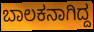
ಬಾಲಕನಾಗಿದ್ದ